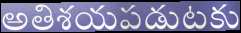
అతిశయపడుటకు